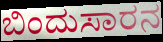
ಬಿಂದುಸಾರನ